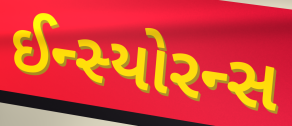
ઈન્સ્યોરન્સ